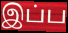
இப்ப